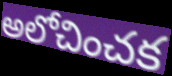
అలోచించక